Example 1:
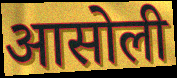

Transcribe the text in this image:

आसोली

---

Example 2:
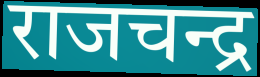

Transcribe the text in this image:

राजचन्द्र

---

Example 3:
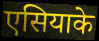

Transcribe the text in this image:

एसियाके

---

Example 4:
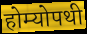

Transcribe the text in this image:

होम्योपथी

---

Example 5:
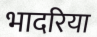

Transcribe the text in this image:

भादरिया